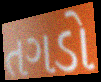
તગડો